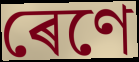
ৰেণে